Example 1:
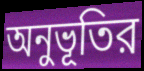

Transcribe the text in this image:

অনুভূতির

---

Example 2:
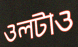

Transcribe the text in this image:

ওলটাও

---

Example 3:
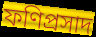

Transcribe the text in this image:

ফণিপ্রসাদ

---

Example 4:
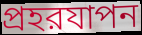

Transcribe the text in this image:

প্রহরযাপন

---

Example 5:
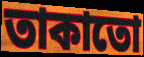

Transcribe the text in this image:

তাকাতো